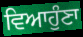
ਵਿਆਹੁੰਣਾ